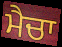
ਮੈਚਾ